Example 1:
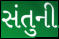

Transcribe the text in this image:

સંતુની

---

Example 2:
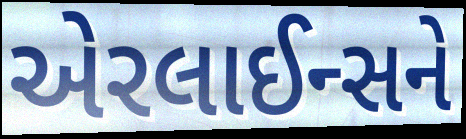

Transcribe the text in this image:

એરલાઈન્સને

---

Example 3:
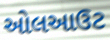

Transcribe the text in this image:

ઓલઆઉટ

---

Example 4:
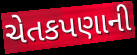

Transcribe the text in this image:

ચેતકપણાની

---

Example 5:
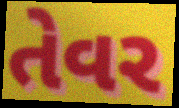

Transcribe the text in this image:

તેવર